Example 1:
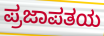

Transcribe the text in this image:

ಪ್ರಜಾಪತಯ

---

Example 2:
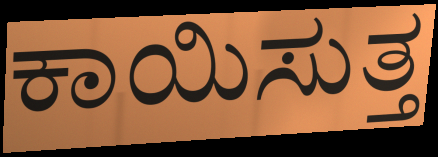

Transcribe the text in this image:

ಕಾಯಿಸುತ್ತ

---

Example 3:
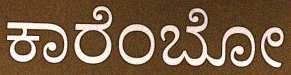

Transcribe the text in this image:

ಕಾರೆಂಬೋ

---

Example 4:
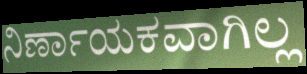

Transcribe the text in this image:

ನಿರ್ಣಾಯಕವಾಗಿಲ್ಲ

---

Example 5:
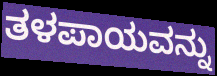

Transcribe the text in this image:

ತಳಪಾಯವನ್ನು